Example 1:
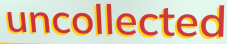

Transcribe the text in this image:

uncollected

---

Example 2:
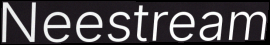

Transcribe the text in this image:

Neestream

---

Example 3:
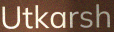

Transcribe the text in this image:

Utkarsh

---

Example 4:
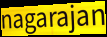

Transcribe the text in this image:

nagarajan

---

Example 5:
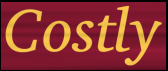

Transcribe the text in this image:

Costly